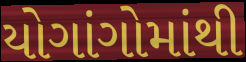
યોગાંગોમાંથી